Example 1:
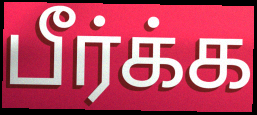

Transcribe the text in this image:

பீர்க்க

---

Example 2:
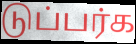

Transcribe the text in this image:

டுப்பர்க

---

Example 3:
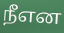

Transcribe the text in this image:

நீஎன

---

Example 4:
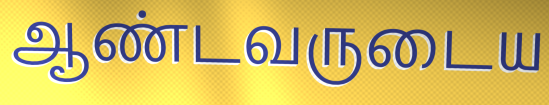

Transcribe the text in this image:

ஆண்டவருடைய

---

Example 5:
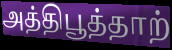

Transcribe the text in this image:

அத்திபூத்தாற்